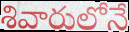
శివారులోనే